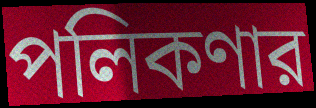
পলিকণার